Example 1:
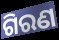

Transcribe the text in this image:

ଗିରଣ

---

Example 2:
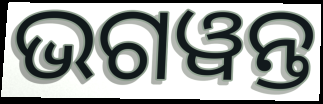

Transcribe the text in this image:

ଭଗୱନ୍ତ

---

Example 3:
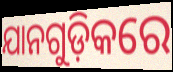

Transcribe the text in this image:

ଯାନଗୁଡ଼ିକରେ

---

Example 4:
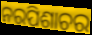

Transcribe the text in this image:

ନରପିଶାଚର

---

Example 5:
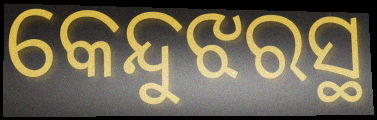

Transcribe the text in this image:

କେନ୍ଦୁଝରସ୍ଥ